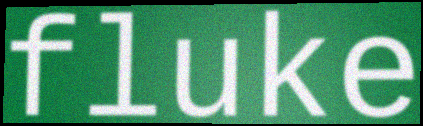
fluke